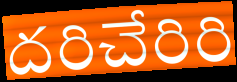
దరిచేరిరి